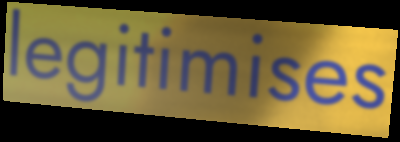
legitimises